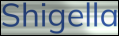
Shigella